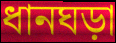
ধানঘড়া